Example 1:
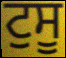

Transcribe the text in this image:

ਟੁਸੂ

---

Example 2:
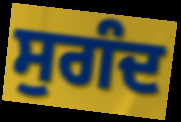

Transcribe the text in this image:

ਸੁਗੰਦ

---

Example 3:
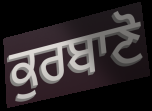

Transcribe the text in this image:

ਕੁਰਬਾਣੋ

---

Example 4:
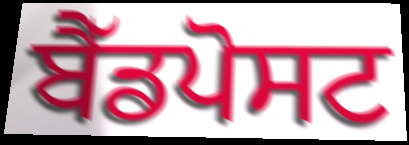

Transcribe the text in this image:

ਬੈੱਡਪੋਸਟ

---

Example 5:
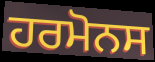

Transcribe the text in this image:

ਹਰਮੋਨਸ